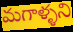
మగాళ్ళని